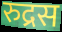
रुद्रस